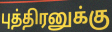
புத்திரனுக்கு